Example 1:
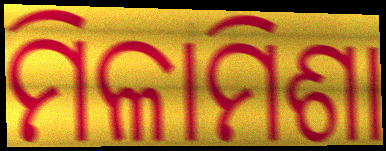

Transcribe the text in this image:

ମିଳାମିଶା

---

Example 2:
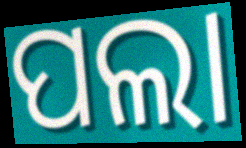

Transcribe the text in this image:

ପଲା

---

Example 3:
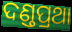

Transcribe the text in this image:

ଦଣ୍ଡପ୍ରଥା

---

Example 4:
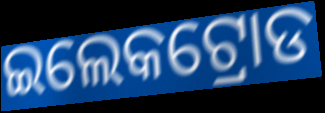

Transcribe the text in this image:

ଇଲେକଟ୍ରୋଡ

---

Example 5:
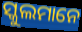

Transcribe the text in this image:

ସ୍କୁଲମାନେ